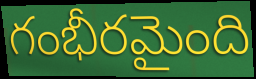
గంభీరమైంది